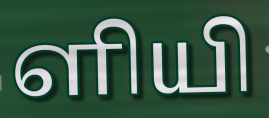
ளியி